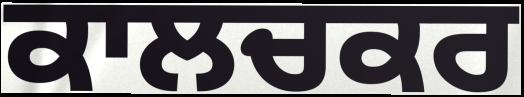
ਕਾਲਚਕਰ